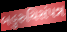
બહુરુચિસંપન્ન